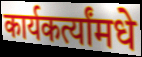
कार्यकर्त्यांमधे